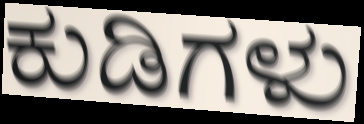
ಕುಡಿಗಳು